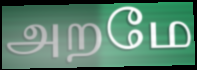
அறமே